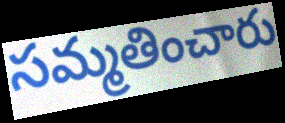
సమ్మతించారు